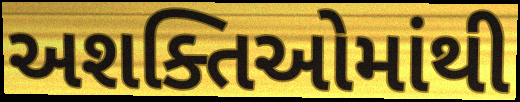
અશક્તિઓમાંથી